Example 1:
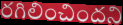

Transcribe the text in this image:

రగిలించిందని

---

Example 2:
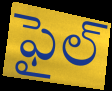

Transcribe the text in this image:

ఫైల్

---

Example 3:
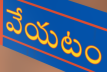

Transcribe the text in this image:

వేయటం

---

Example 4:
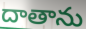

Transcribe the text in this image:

దాతాను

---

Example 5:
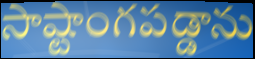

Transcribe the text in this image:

సాష్టాంగపడ్డాను